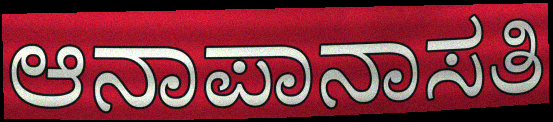
ಆನಾಪಾನಾಸತಿ